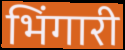
भिंगारी